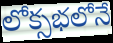
లోక్సభలోనే